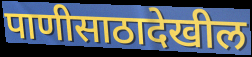
पाणीसाठादेखील